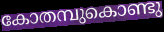
കോതമ്പുകൊണ്ടു